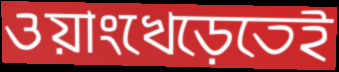
ওয়াংখেড়েতেই